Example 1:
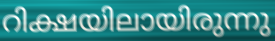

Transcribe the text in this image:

റിക്ഷയിലായിരുന്നു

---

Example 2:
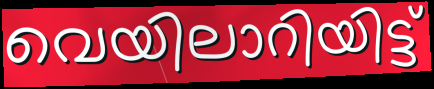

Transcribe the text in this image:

വെയിലാറിയിട്ട്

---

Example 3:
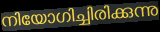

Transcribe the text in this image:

നിയോഗിച്ചിരിക്കുന്നു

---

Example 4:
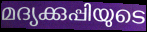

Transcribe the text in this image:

മദ്യക്കുപ്പിയുടെ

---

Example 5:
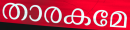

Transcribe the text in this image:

താരകമേ